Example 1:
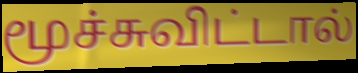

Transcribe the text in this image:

மூச்சுவிட்டால்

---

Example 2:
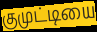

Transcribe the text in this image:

குமுட்டியை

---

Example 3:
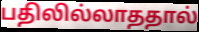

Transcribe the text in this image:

பதிலில்லாததால்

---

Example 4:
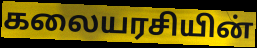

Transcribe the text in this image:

கலையரசியின்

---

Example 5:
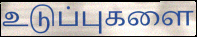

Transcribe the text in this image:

உடுப்புகளை